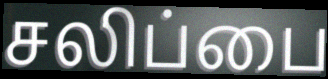
சலிப்பை